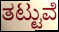
ತಟ್ಟುವೆ